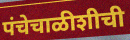
पंचेचाळीशीची